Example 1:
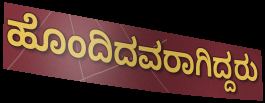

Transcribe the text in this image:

ಹೊಂದಿದವರಾಗಿದ್ದರು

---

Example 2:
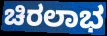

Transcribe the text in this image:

ಚಿರಲಾಭ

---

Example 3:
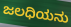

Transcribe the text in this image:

ಜಲಧಿಯನು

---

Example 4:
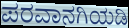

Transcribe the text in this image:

ಪರವಾನಗಿಯಡಿ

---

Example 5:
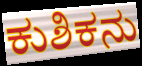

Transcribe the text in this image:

ಕುಶಿಕನು